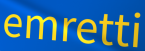
emretti